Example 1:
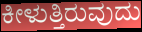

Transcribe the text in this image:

ಕೀಳುತ್ತಿರುವುದು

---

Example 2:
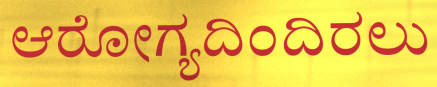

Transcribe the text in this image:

ಆರೋಗ್ಯದಿಂದಿರಲು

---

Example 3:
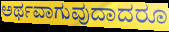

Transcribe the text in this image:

ಅರ್ಥವಾಗುವುದಾದರೂ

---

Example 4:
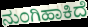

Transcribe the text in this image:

ನುಂಗಿಹಾಕಿದೆ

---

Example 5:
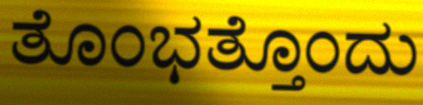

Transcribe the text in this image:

ತೊಂಭತ್ತೊಂದು